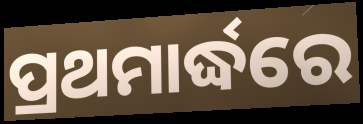
ପ୍ରଥମାର୍ଦ୍ଧରେ